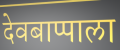
देवबाप्पाला